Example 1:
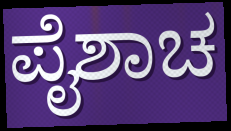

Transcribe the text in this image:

ಪೈಶಾಚ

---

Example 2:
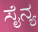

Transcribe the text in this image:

ಸೈನ್ಯ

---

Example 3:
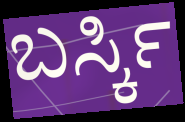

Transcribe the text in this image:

ಬರ್ಸ್ಕಿ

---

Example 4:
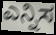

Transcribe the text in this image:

ಎನ್ನಿಸ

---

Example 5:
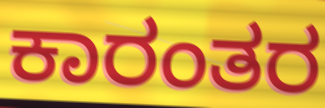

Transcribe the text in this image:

ಕಾರಂತರ